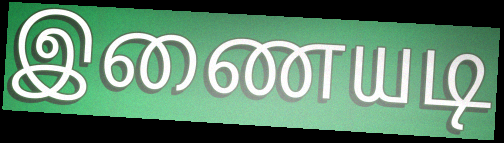
இணையடி